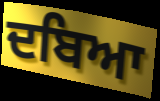
ਦਬਿਆ